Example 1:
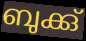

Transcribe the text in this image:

ബുക്കു്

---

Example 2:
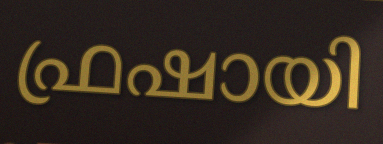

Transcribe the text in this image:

ഫ്രഷായി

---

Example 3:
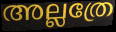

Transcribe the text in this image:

അല്ലത്രേ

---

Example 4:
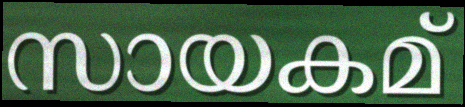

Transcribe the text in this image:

സായകമ്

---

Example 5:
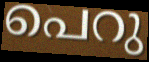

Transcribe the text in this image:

പെറു